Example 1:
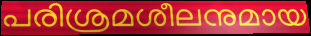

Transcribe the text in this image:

പരിശ്രമശീലനുമായ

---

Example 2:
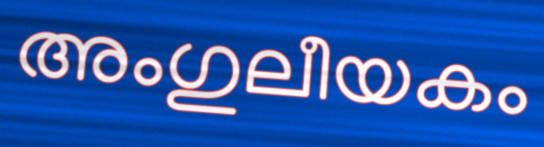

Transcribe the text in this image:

അംഗുലീയകം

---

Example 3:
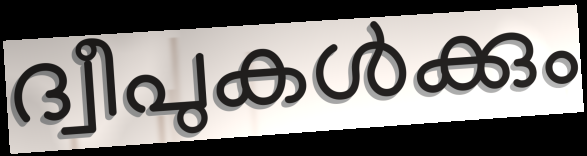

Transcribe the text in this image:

ദ്വീപുകൾക്കും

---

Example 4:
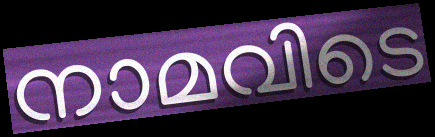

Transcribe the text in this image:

നാമവിടെ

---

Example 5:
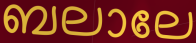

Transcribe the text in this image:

ബലാലേ